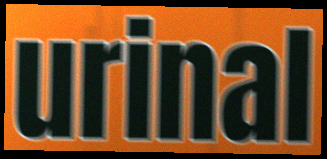
urinal